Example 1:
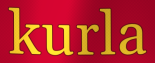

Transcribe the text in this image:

kurla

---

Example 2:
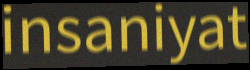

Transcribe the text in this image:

insaniyat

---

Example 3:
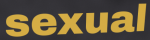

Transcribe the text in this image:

sexual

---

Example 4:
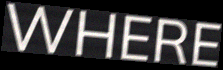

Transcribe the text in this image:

WHERE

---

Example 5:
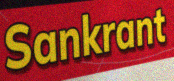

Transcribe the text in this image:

Sankrant